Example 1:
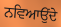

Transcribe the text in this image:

ਨਵਿਆਉਂਦੇ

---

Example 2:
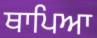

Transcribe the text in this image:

ਥਾਪਿਆ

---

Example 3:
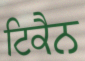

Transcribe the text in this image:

ਟਿਕੈਨ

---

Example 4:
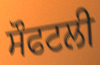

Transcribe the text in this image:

ਸੌਫਟਲੀ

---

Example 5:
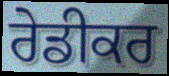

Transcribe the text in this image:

ਰੇਡੀਕਰ